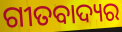
ଗୀତବାଦ୍ୟର